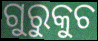
ଗୁରୁକୁଚ